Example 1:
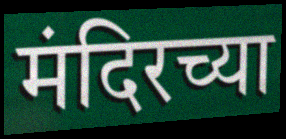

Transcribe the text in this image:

मंदिरच्या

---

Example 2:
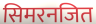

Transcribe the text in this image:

सिमरनजित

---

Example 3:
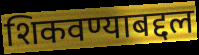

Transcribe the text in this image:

शिकवण्याबद्दल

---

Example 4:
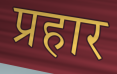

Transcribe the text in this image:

प्रहार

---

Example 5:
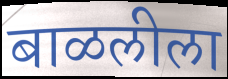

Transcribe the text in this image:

बाळलीला